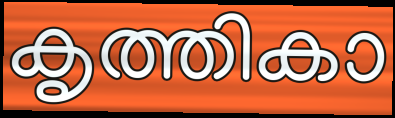
കൃത്തികാ